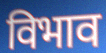
विभाव